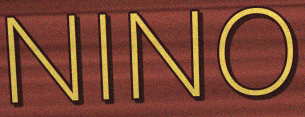
NINO